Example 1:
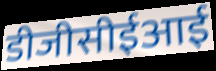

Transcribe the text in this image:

डीजीसीईआई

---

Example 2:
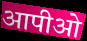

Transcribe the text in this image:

आपीओ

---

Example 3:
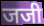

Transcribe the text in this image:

जजी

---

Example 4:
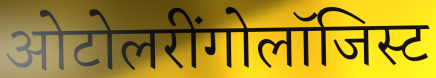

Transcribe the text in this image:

ओटोलरींगोलॉजिस्ट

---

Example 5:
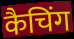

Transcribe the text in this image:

कैचिंग